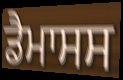
ਡੈਮਾਸਸ